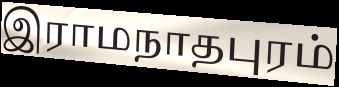
இராமநாதபுரம்